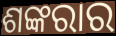
ଶଙ୍କରାର